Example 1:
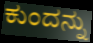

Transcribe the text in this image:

ಕುಂದನ್ನು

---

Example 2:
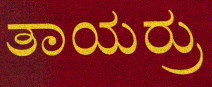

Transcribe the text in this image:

ತಾಯರ್ರು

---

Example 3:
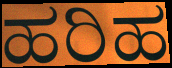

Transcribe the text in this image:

ಹರಿಹ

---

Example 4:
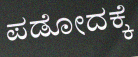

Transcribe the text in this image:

ಪಡೋದಕ್ಕೆ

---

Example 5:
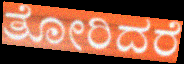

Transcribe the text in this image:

ತೋರಿದರೆ